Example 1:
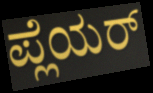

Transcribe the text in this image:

ಪ್ಲೆಯರ್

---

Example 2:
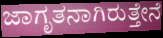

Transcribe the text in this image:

ಜಾಗೃತನಾಗಿರುತ್ತೇನೆ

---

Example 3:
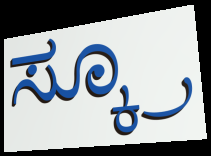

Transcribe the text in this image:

ಸ್ಕ್ರೂ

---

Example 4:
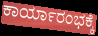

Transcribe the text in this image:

ಕಾರ್ಯಾರಂಭಕ್ಕೆ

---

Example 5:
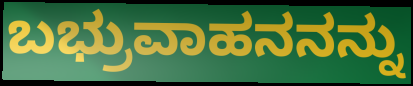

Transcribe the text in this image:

ಬಭ್ರುವಾಹನನನ್ನು